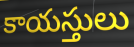
కాయస్తులు